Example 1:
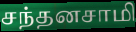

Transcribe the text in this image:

சந்தனசாமி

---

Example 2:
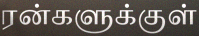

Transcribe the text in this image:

ரன்களுக்குள்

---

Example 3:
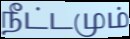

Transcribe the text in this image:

நீட்டமும்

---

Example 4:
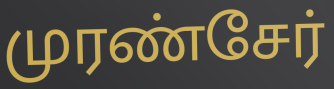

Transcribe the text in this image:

முரண்சேர்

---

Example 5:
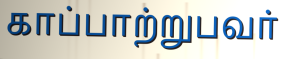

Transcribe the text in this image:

காப்பாற்றுபவர்